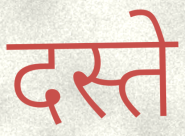
दस्ते